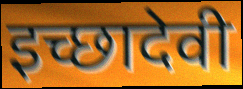
इच्छादेवी